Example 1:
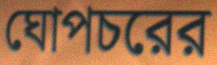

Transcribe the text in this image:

ঘোপচরের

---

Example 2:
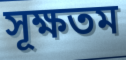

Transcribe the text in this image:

সূক্ষতম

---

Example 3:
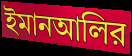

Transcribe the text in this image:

ইমানআলির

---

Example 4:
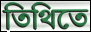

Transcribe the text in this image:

তিথিতে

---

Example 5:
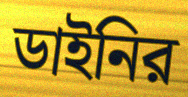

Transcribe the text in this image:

ডাইনির